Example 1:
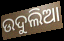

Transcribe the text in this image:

ଉଦୁଲିଆ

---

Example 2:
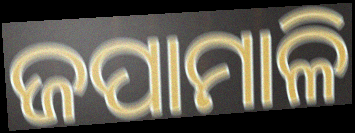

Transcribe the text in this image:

ଜପାମାଳି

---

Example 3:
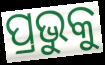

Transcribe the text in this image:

ପ୍ରଭୁକୁ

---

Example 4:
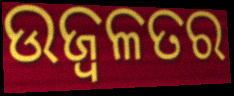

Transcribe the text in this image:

ଉଜ୍ବଳତର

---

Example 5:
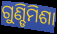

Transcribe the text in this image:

ଗୁଣ୍ଡିମିଶା